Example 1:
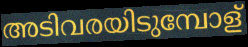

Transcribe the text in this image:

അടിവരയിടുമ്പോള്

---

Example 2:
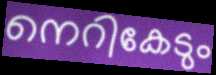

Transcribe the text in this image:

നെറികേടും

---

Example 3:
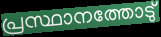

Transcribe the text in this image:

പ്രസ്ഥാനത്തോടു്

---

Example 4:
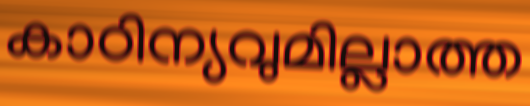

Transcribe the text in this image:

കാഠിന്യവുമില്ലാത്ത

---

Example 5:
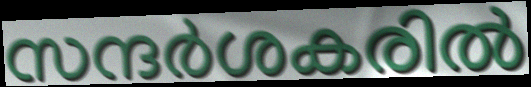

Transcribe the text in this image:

സന്ദർശകരിൽ